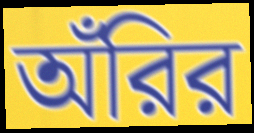
অঁরির